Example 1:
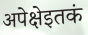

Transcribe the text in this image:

अपेक्षेइतकं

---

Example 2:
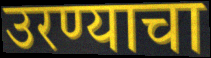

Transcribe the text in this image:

उरण्याचा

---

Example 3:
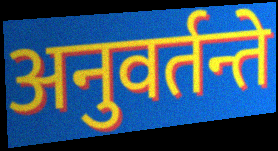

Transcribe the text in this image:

अनुवर्तन्ते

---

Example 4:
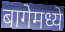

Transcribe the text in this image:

बागेमध्ये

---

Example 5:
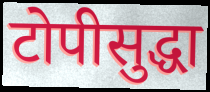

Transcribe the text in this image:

टोपीसुद्धा